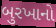
બુરખાનો